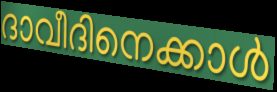
ദാവീദിനെക്കാൾ